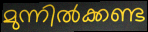
മുന്നിൽക്കണ്ട